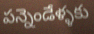
పన్నెండేళ్ళకు